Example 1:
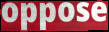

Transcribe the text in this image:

oppose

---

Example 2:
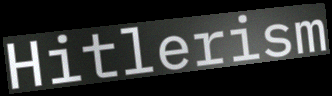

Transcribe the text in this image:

Hitlerism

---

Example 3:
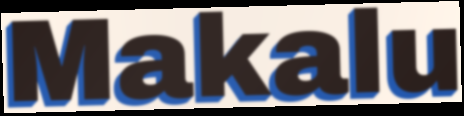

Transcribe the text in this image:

Makalu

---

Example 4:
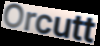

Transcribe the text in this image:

Orcutt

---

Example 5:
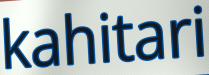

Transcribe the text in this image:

kahitari